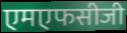
एमएफसीजी